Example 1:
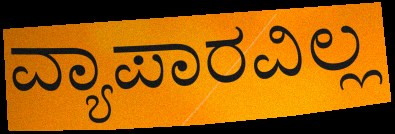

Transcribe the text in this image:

ವ್ಯಾಪಾರವಿಲ್ಲ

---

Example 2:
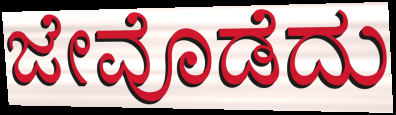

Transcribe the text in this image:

ಜೇವೊಡೆದು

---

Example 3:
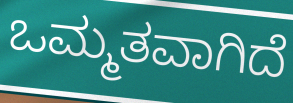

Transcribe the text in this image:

ಒಮ್ಮತವಾಗಿದೆ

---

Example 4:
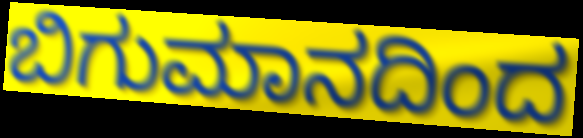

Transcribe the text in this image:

ಬಿಗುಮಾನದಿಂದ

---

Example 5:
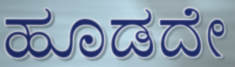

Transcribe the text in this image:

ಹೂಡದೇ